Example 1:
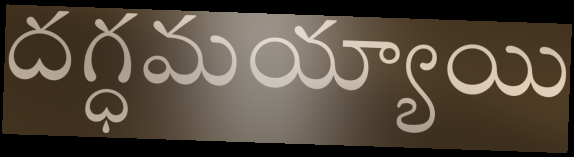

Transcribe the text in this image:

దగ్ధమయ్యాయి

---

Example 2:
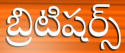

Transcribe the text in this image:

బ్రిటిషర్స్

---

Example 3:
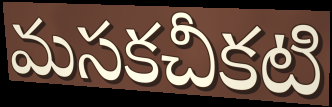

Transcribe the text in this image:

మసకచీకటి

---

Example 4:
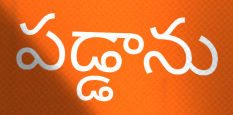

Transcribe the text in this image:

పడ్డాను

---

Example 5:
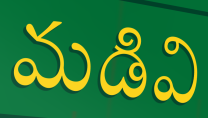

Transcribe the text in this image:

మడివి